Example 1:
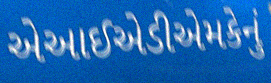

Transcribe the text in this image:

એઆઈએડીએમકેનું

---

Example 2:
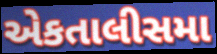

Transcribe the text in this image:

એકતાલીસમા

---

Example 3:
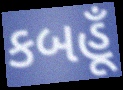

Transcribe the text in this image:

કબહૂઁ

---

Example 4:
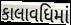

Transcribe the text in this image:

કાલાવધિમાં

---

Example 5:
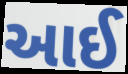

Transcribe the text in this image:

આઈ